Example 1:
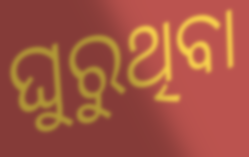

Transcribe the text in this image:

ଘୁରୁଥିବା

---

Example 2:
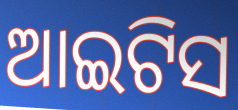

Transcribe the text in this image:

ଆଇଟିସ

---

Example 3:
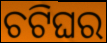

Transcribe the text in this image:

ଚଟିଘର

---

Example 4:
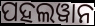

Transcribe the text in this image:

ପହଲୱାନ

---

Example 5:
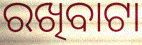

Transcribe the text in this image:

ରଖିବାଟା